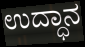
ಉದ್ಧಾನ